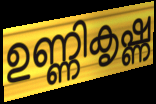
ഉണ്ണികൃഷ്ണ